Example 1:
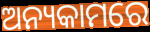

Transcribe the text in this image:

ଅନ୍ୟକାମରେ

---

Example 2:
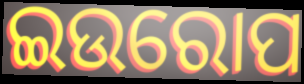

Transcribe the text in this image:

ଇଉରୋପ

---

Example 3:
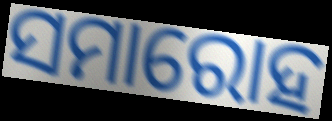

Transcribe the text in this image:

ସମାରୋହ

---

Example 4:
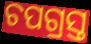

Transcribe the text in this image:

ଚପଗ୍ରସ୍ତ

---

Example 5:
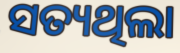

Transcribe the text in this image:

ସତ୍ୟଥିଲା